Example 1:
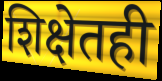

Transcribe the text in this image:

शिक्षेतही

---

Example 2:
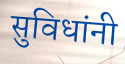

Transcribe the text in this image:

सुविधांनी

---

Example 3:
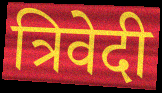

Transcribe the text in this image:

त्रिवेदी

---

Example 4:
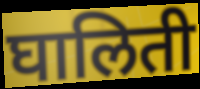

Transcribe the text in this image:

घालिती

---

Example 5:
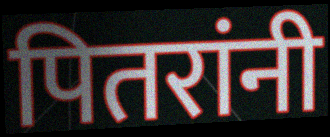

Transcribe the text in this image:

पितरांनी